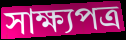
সাক্ষ্যপত্র